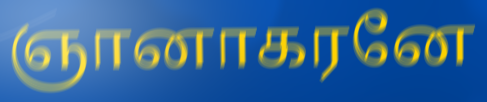
ஞானாகரனே